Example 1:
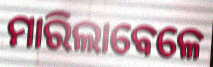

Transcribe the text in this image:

ମାରିଲାବେଳେ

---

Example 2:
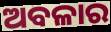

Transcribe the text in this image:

ଅବଳାର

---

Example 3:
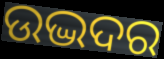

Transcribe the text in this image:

ଉଦ୍ଭଦର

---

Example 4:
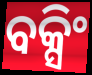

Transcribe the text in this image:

ବକ୍ସିଂ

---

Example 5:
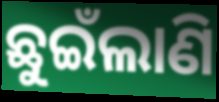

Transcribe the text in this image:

ଛୁଇଁଲାଣି